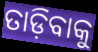
ତାଡ଼ିବାକୁ